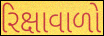
રિક્ષાવાળો